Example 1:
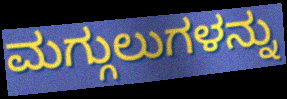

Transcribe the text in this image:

ಮಗ್ಗುಲುಗಳನ್ನು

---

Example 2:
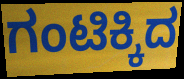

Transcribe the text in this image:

ಗಂಟಿಕ್ಕಿದ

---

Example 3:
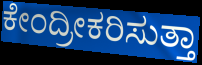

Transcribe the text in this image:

ಕೇಂದ್ರೀಕರಿಸುತ್ತಾ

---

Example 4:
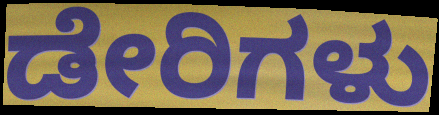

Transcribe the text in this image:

ಡೇರಿಗಳು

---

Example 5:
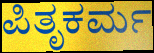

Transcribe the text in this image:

ಪಿತೃಕರ್ಮ